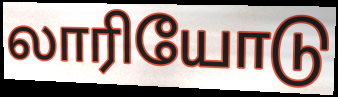
லாரியோடு